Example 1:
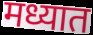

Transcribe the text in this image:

मध्यात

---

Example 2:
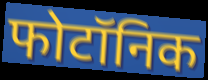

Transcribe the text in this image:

फोटॉनिक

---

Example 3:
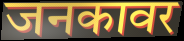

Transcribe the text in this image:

जनकावर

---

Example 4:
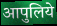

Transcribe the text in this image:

आपुलिये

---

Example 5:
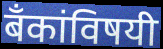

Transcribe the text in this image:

बँकांविषयी